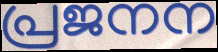
പ്രജനന